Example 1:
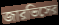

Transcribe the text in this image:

জারভিসের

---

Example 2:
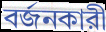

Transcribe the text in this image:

বর্জনকারী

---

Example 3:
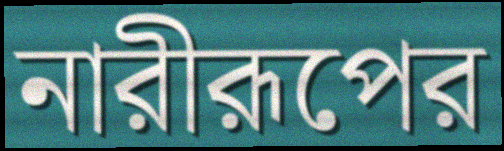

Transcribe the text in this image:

নারীরূপের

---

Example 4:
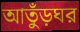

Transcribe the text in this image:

আতুঁড়ঘর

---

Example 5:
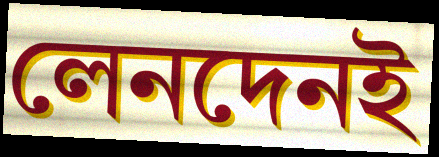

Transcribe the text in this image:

লেনদেনই